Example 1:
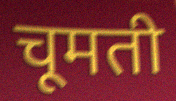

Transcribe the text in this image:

चूमती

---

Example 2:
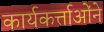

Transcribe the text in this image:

कार्यकर्त्ताओंने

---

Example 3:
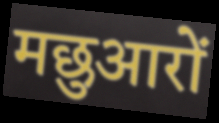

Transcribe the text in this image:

मछुआरों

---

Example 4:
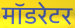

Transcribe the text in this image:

मॉडरेटर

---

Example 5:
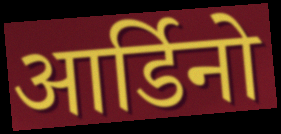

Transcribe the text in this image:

आर्डिनो